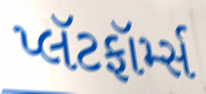
પ્લૅટફૉર્મ્સ